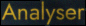
Analyser